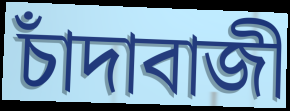
চাঁদাবাজী